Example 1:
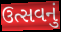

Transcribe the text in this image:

ઉત્સવનું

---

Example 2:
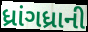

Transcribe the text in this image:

ધ્રાંગધ્રાની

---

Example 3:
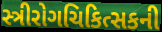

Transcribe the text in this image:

સ્ત્રીરોગચિકિત્સકની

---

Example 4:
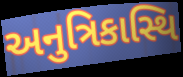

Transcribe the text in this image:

અનુત્રિકાસ્થિ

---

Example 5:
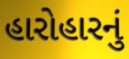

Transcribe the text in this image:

હારોહારનું